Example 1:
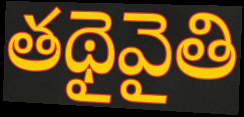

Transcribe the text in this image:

తథైవైతి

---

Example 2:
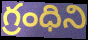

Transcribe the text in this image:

గ్రంధిని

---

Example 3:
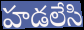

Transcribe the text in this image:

హడలేసి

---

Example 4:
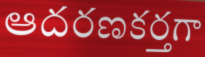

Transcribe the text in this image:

ఆదరణకర్తగా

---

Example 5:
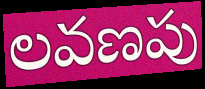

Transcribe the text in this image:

లవణపు